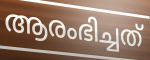
ആരംഭിച്ചത്